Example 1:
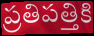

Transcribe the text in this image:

ప్రతిపత్తికి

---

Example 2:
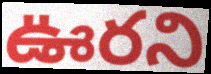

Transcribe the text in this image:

ఊరని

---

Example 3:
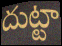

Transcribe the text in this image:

దుట్టా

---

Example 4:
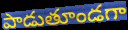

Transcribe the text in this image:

పాడుతూండగా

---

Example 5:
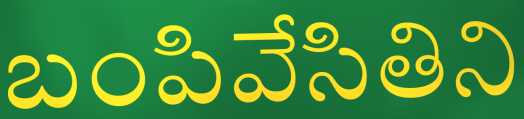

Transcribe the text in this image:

బంపివేసితిని